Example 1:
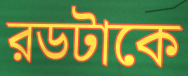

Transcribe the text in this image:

রডটাকে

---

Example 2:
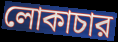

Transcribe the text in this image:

লোকাচার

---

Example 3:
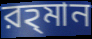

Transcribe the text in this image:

রহ্‌মান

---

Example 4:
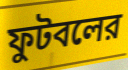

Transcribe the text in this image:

ফুটবলের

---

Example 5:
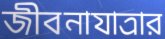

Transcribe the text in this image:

জীবনাযাত্রার